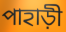
পাহাড়ী